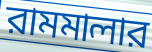
রামমালার